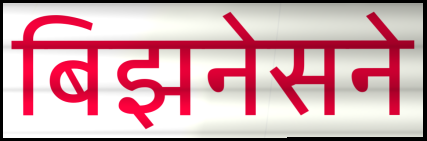
बिझनेसने